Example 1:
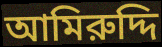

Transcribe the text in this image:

আমিরুদ্দি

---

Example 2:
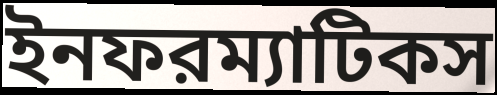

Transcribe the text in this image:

ইনফরম্যাটিকস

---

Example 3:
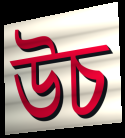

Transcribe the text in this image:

উচ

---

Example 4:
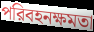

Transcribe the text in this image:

পরিবহনক্ষমতা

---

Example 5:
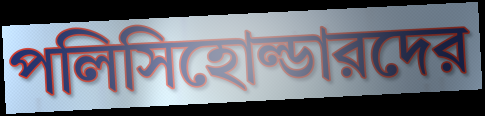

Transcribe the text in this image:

পলিসিহোল্ডারদের